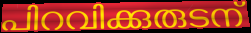
പിറവിക്കുരുടന്